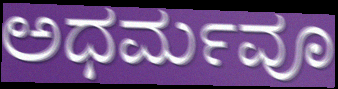
ಅಧರ್ಮವೂ